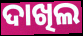
ଦାଖିଲ